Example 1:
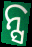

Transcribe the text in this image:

ନ୍ସ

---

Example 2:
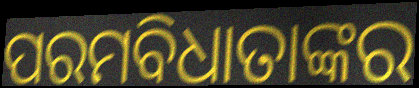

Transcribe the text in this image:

ପରମବିଧାତାଙ୍କର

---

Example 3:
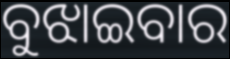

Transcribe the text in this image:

ବୁଝାଇବାର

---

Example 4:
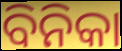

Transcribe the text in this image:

ବିନିକା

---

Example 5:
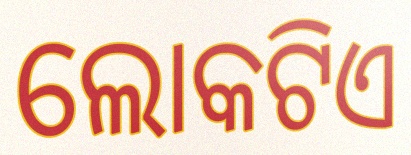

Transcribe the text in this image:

ଲୋକଟିଏ